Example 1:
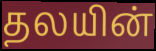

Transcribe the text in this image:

தலயின்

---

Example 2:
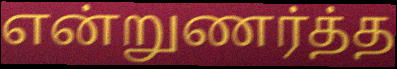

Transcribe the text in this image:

என்றுணர்த்த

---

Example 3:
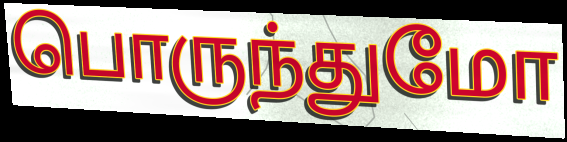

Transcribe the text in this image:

பொருந்துமோ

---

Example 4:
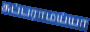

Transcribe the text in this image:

சுப்பராமய்யா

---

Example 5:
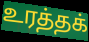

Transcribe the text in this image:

உரத்தக்